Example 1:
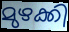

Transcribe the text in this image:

മുഴക്കി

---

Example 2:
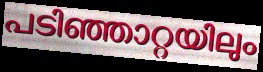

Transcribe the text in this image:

പടിഞ്ഞാറ്റയിലും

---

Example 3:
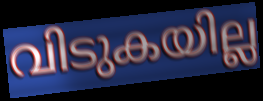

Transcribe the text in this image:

വിടുകയില്ല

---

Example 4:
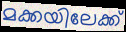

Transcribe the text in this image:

മക്കയിലേക്ക്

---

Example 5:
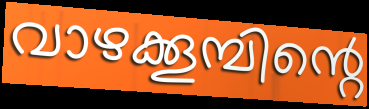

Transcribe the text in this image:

വാഴക്കൂമ്പിന്റെ